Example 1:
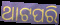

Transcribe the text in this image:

ଥାଟପରି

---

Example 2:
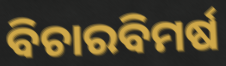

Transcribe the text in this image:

ବିଚାରବିମର୍ଷ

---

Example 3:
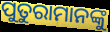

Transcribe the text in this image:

ପୁତୁରାମାନଙ୍କୁ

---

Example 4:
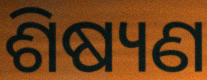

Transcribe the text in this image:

ଶିଷ୍ୟଣ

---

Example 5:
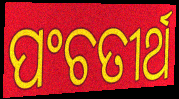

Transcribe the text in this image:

ପଂଚତୀର୍ଥ